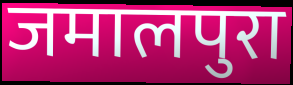
जमालपुरा